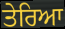
ਤੇਰਿਆ